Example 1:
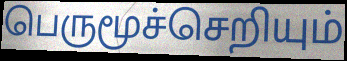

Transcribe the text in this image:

பெருமூச்செறியும்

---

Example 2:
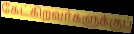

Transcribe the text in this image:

கேட்கிறவர்களுக்குப்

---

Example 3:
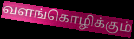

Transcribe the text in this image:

வளங்கொழிக்கும்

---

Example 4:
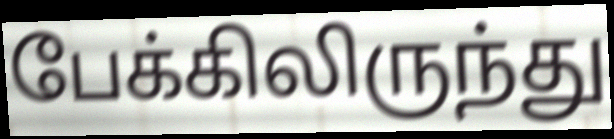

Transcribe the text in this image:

பேக்கிலிருந்து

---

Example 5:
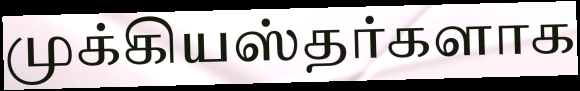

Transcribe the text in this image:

முக்கியஸ்தர்களாக